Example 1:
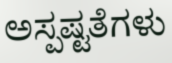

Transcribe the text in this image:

ಅಸ್ಪಷ್ಟತೆಗಳು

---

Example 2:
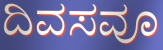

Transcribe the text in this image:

ದಿವಸವೂ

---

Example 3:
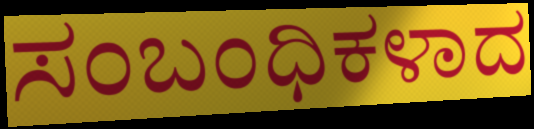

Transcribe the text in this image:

ಸಂಬಂಧಿಕಳಾದ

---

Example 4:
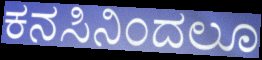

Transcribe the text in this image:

ಕನಸಿನಿಂದಲೂ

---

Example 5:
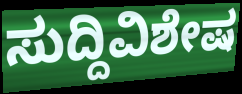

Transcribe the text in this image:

ಸುದ್ದಿವಿಶೇಷ